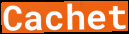
Cachet